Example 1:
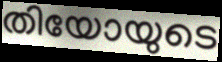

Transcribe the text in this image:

തിയോയുടെ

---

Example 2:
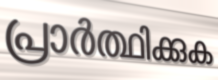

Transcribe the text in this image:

പ്രാർത്ഥിക്കുക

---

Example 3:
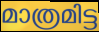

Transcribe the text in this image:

മാത്രമിട്ട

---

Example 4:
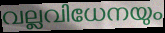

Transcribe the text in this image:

വല്ലവിധേനയും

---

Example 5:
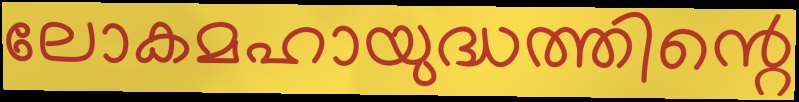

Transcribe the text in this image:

ലോകമഹായുദ്ധത്തിന്റെ